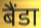
बैंडा